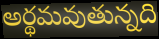
అర్థమవుతున్నది